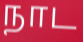
நாட